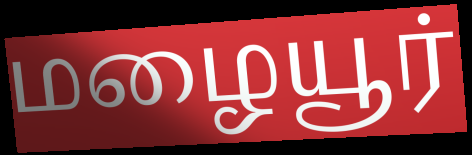
மழையூர்